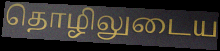
தொழிலுடைய